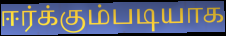
ஈர்க்கும்படியாக